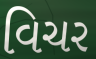
વિચર